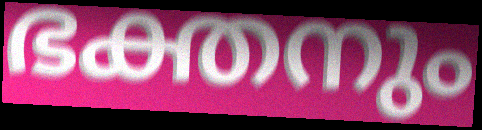
ഭക്തനും